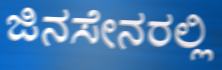
ಜಿನಸೇನರಲ್ಲಿ